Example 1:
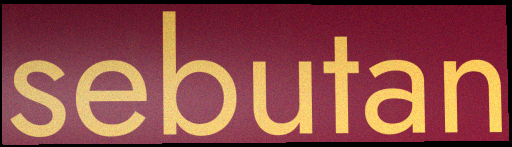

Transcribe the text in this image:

sebutan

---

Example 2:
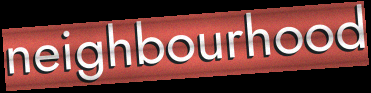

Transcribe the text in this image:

neighbourhood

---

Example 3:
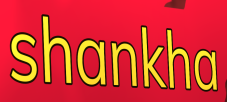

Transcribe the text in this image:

shankha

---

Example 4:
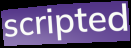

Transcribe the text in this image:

scripted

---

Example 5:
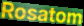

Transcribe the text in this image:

Rosatom